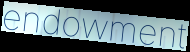
endowment